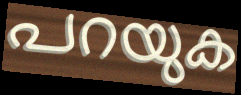
പറയുക